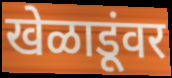
खेळाडूंवर